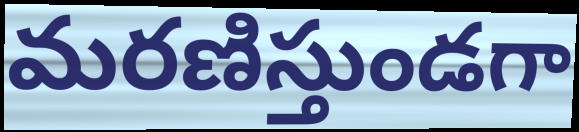
మరణిస్తుండగా